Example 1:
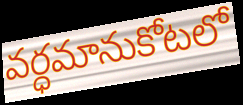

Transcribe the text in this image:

వర్ధమానుకోటలో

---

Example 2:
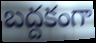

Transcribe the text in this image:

బద్దకంగా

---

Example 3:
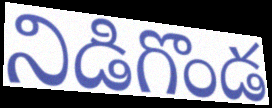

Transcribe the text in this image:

నిడిగొండ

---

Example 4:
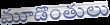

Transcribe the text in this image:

మూడొంతులు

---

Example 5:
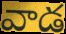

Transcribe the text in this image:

వాడ